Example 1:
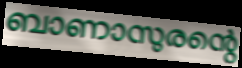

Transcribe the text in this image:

ബാണാസുരന്റെ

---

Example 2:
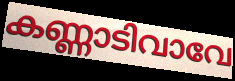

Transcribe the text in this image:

കണ്ണാടിവാവേ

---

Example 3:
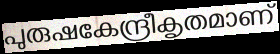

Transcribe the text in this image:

പുരുഷകേന്ദ്രീകൃതമാണ്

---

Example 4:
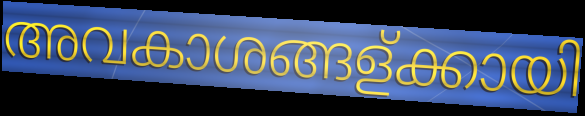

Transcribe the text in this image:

അവകാശങ്ങള്ക്കായി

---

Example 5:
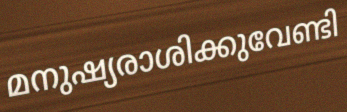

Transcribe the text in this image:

മനുഷ്യരാശിക്കുവേണ്ടി